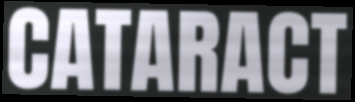
CATARACT